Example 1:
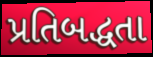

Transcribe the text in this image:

પ્રતિબદ્ધતા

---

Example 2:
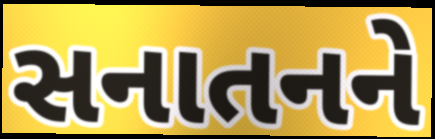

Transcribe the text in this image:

સનાતનને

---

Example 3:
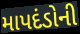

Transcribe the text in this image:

માપદંડોની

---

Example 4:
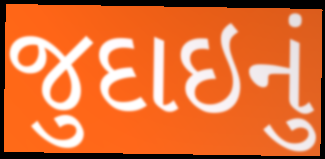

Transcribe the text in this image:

જુદાઇનું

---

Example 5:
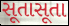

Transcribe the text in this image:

સૂતાસૂતા